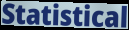
Statistical